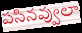
పసినవ్వులా